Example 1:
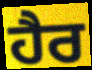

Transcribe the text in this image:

ਹੈਰ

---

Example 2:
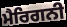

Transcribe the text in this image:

ਮੈਰਿਗਨੀ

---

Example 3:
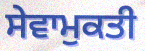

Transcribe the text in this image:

ਸੇਵਾਮੁਕਤੀ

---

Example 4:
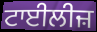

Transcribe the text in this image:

ਟਾਈਲੀਜ਼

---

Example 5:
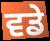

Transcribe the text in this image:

ਵਡੇ